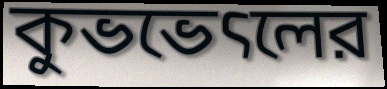
কুভভেৎলের